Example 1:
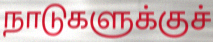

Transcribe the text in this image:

நாடுகளுக்குச்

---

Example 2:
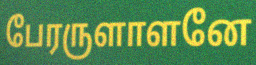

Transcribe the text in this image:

பேரருளாளனே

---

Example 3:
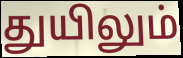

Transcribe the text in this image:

துயிலும்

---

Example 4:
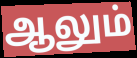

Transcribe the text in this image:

ஆலும்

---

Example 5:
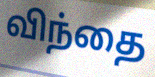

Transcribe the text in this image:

விந்தை